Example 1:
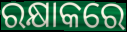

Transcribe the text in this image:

ରକ୍ଷାକରେ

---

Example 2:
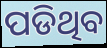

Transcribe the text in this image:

ପଡିଥିବ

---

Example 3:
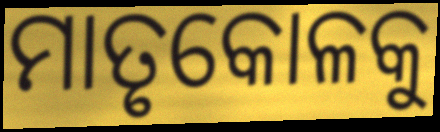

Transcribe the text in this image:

ମାତୃକୋଳକୁ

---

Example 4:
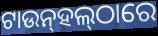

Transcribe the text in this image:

ଟାଉନ୍‌ହଲ୍‌ଠାରେ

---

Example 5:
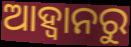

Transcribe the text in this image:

ଆହ୍ବାନରୁ